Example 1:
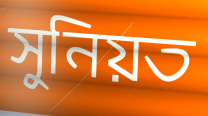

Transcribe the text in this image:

সুনিয়ত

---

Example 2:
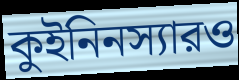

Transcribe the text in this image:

কুইনিনস্যারও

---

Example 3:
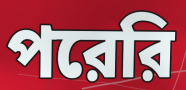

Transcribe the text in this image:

পরেরি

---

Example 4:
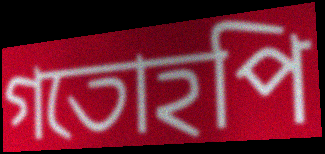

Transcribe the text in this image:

গতোহপি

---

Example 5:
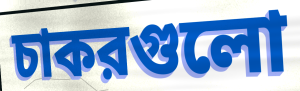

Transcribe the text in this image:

চাকরগুলো